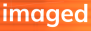
imaged